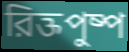
রিক্তপুষ্প